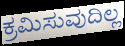
ಕ್ರಮಿಸುವುದಿಲ್ಲ